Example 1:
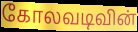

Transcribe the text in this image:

கோலவடிவின்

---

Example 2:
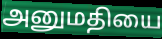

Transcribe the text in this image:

அனுமதியை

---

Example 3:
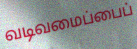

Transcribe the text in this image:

வடிவமைப்பைப்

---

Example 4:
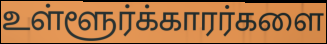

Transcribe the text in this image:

உள்ளூர்க்காரர்களை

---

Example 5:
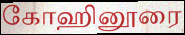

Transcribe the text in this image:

கோஹினூரை